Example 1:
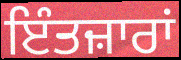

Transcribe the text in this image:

ਇੰਤਜ਼ਾਰਾਂ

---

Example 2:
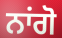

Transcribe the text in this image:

ਨਾਂਗੋ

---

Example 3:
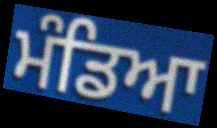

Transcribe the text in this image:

ਮੰਡਿਆ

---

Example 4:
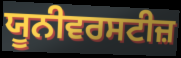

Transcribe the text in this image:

ਯੂਨੀਵਰਸਟੀਜ਼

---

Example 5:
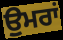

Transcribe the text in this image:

ਉੁਮਰਾਂ